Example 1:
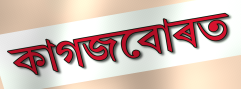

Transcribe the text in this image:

কাগজবোৰত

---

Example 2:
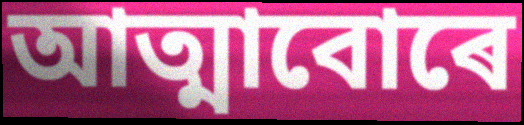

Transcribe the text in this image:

আত্মাবোৰে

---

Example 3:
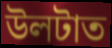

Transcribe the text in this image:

উলটাত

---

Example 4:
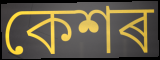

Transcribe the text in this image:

কেশৰ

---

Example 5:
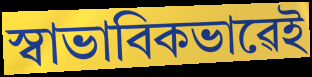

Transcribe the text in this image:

স্বাভাবিকভাৱেই